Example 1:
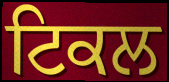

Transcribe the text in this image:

ਟਿਕਲ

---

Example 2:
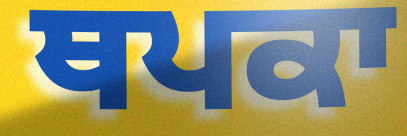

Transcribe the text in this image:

ਥਪਕਾ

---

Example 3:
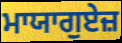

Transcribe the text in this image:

ਮਾਯਾਗੁਏਜ਼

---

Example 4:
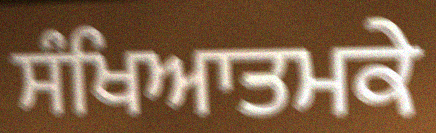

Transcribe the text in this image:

ਸੰਖਿਆਤਮਕੇ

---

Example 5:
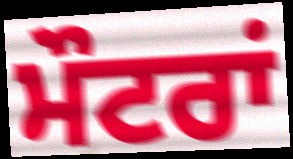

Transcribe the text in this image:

ਮੌਟਰਾਂ